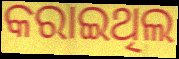
କରାଇଥିଲ